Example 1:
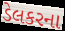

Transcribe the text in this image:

ડેલકરના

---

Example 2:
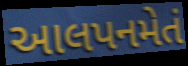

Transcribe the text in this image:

આલપનમેતં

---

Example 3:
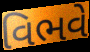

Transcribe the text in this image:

વિભવે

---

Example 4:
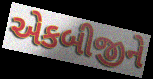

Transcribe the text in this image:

એકબીજીને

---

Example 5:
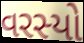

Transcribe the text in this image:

વરસ્યો